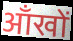
आँखों